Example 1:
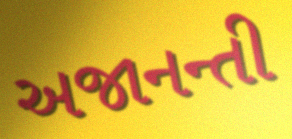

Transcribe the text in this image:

અજાનન્તી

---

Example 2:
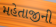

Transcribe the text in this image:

મહેતાજીની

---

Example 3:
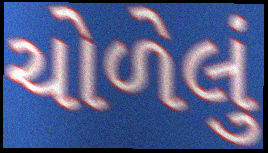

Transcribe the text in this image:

ચોળેલું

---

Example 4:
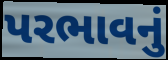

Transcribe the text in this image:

પરભાવનું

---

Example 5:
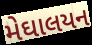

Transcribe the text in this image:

મેઘાલયન